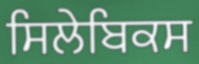
ਸਿਲੇਬਿਕਸ